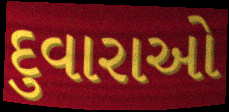
દુવારાઓ